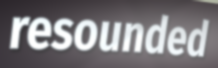
resounded